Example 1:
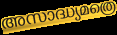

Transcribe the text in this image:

അസാദ്ധ്യമത്രെ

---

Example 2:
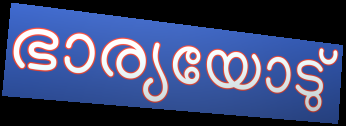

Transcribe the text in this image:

ഭാര്യയോടു്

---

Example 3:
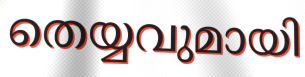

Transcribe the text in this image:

തെയ്യവുമായി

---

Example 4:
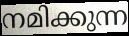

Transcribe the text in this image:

നമിക്കുന്ന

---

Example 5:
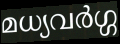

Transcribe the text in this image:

മധ്യവർഗ്ഗ